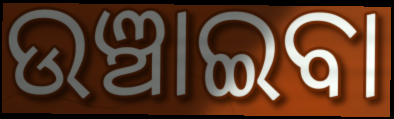
ଉଞ୍ଚାଇବା